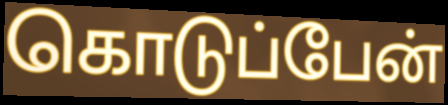
கொடுப்பேன்